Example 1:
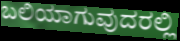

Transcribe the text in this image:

ಬಲಿಯಾಗುವುದರಲ್ಲಿ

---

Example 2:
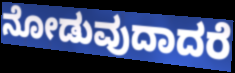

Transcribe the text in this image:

ನೋಡುವುದಾದರೆ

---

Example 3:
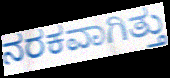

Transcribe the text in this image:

ನರಕವಾಗಿತ್ತು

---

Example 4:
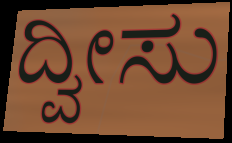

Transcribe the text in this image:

ದ್ವೀಸು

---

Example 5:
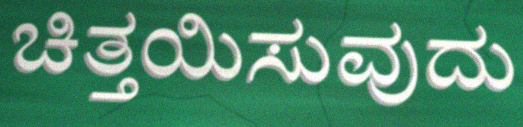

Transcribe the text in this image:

ಚಿತ್ತಯಿಸುವುದು